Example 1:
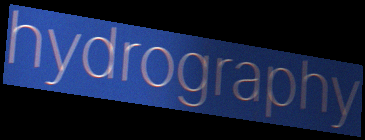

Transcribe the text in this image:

hydrography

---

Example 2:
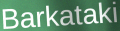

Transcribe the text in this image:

Barkataki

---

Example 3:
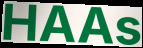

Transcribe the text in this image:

HAAs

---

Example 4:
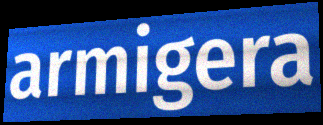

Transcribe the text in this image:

armigera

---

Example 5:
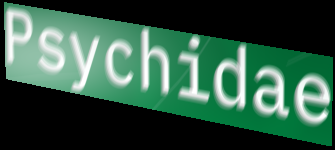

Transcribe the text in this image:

Psychidae